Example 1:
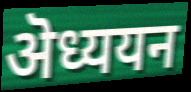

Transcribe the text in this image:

ऄध्ययन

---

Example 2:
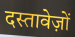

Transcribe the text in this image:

दस्तावेज़ों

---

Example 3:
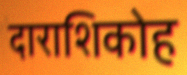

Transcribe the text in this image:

दाराशिकोह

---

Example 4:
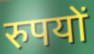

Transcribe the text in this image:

रुपयों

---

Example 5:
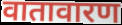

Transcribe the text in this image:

वातावारण